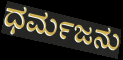
ಧರ್ಮಜನು